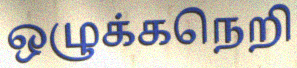
ஒழுக்கநெறி